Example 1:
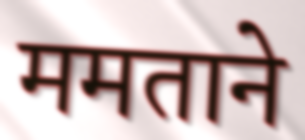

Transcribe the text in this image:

ममताने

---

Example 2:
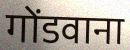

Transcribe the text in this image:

गोंडवाना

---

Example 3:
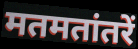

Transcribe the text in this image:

मतमतांतरें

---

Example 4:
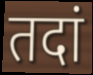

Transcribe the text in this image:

तदां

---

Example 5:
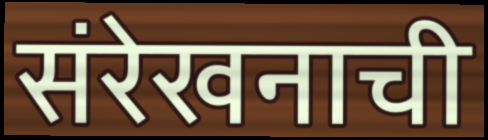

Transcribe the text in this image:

संरेखनाची